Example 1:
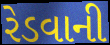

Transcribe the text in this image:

રેડવાની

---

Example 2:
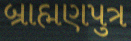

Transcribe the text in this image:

બ્રાહ્મણપુત્ર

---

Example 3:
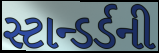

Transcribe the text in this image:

સ્ટાન્ડર્ડની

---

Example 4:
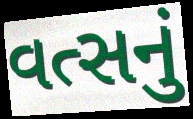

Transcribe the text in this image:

વત્સનું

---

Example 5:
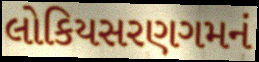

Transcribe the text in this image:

લોકિયસરણગમનં